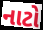
નાટો